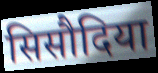
सिसौदिया